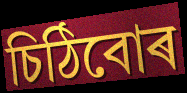
চিঠিবোৰ